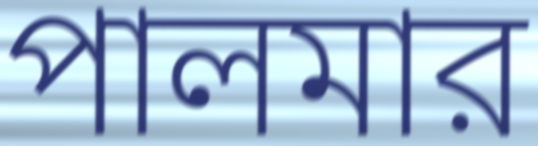
পালমার